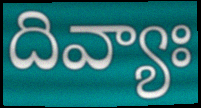
దివ్యాః